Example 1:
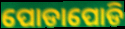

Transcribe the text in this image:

ପୋଡାପୋଡି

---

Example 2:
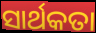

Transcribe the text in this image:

ସାର୍ଥକତା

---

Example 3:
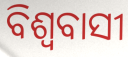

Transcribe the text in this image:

ବିଶ୍ୱବାସୀ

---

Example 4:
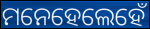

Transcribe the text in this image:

ମନେହେଲେହେଁ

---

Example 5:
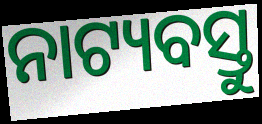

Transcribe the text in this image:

ନାଟ୍ୟବସ୍ତୁ